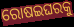
ରୋଷଇଘରକୁ